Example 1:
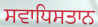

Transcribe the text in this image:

ਸਵਾਧਿਸਤਾਨ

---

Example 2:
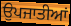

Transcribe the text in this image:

ਉਪਜਾਤੀਆਂ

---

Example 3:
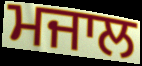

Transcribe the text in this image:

ਮਜਾਲ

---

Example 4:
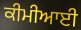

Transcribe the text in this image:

ਕੀਮੀਆਈ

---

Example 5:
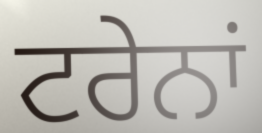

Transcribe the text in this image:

ਟਰੇਨਾਂ